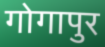
गोगापुर